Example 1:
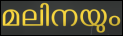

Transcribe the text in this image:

മലിനയും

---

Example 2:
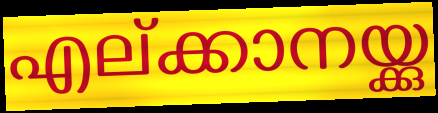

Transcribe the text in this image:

എല്ക്കാനയ്ക്കു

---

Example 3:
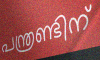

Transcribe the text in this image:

പന്ത്രണ്ടിന്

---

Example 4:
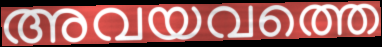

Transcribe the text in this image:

അവയവത്തെ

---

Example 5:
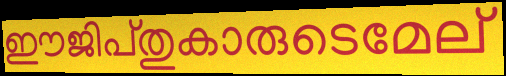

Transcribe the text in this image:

ഈജിപ്തുകാരുടെമേല്